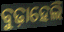
ବୁଢ଼ାହେଲି